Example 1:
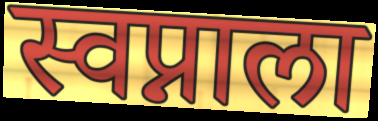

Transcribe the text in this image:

स्वप्नाला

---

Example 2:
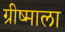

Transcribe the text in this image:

ग्रीष्माला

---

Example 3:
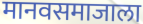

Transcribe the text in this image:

मानवसमाजाला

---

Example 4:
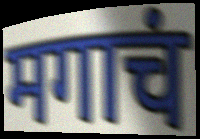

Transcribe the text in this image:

मगाचं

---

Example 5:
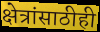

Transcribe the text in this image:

क्षेत्रांसाठीही